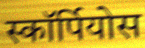
स्कॉर्पियोस